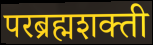
परब्रह्मशक्ती